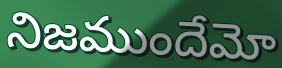
నిజముందేమో